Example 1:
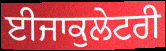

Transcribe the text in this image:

ਈਜਾਕੁਲੇਟਰੀ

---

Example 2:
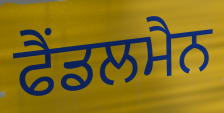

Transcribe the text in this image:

ਫੈਂਡਲਮੈਨ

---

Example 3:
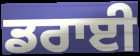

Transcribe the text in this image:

ਡਰਾਈ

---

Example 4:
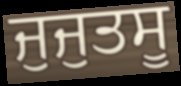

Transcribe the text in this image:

ਜੁਜੁਤਸੂ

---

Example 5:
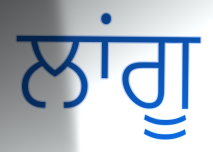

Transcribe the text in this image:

ਲਾਂਗੂ